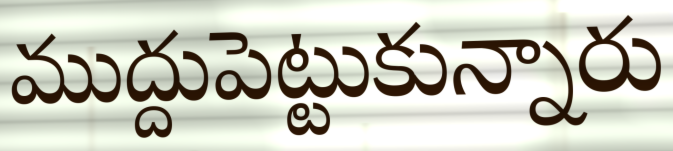
ముద్దుపెట్టుకున్నారు